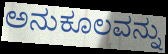
ಅನುಕೂಲವನ್ನು